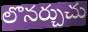
లొనర్చుచు